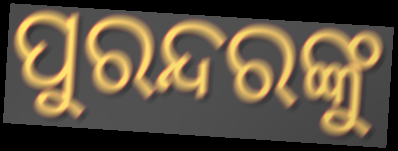
ପୁରନ୍ଦରଙ୍କୁ